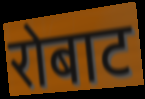
रोबाट